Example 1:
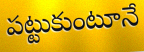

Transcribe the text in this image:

పట్టుకుంటూనే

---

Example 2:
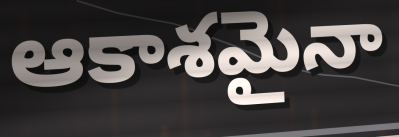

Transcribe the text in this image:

ఆకాశమైనా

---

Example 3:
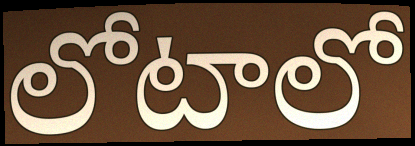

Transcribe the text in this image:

లోటాలో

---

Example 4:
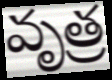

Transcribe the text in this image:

వృత్ర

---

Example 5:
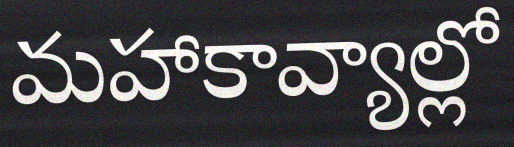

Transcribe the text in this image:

మహాకావ్యాల్లో